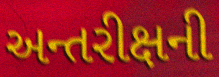
અન્તરીક્ષની